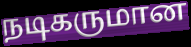
நடிகருமான